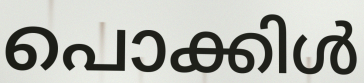
പൊക്കിൾ